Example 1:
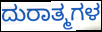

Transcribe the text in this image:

ದುರಾತ್ಮಗಳ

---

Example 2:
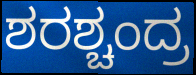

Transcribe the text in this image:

ಶರಶ್ಚಂದ್ರ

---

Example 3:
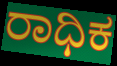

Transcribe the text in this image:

ರಾಧಿಕ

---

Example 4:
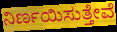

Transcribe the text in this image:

ನಿರ್ಣಯಿಸುತ್ತೇವೆ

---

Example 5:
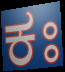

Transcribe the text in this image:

ಕಃ